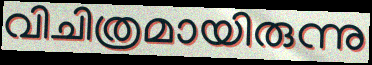
വിചിത്രമായിരുന്നു